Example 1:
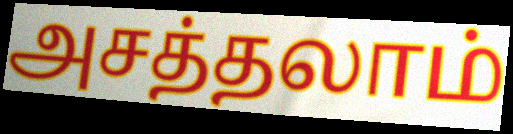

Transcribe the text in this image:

அசத்தலாம்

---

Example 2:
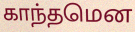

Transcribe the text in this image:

காந்தமென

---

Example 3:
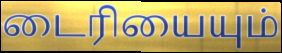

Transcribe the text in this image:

டைரியையும்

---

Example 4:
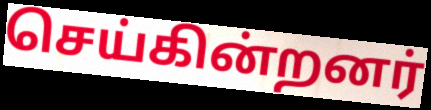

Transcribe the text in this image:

செய்கின்றனர்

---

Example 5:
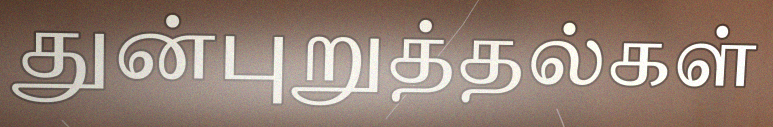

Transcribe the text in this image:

துன்புறுத்தல்கள்